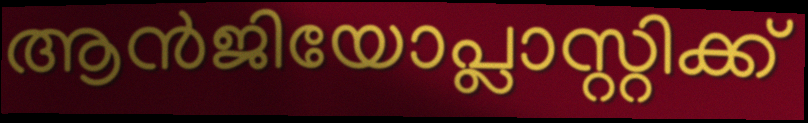
ആൻജിയോപ്ലാസ്റ്റിക്ക്